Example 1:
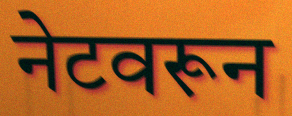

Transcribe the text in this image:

नेटवरून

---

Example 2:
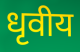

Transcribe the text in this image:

धृवीय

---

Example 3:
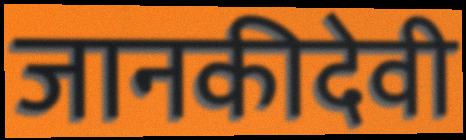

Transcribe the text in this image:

जानकीदेवी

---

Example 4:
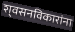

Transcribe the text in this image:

श्वसनविकारांना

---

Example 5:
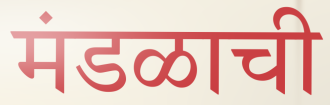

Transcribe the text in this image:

मंडळाची